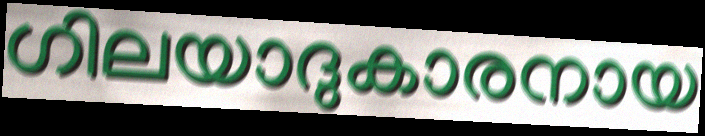
ഗിലയാദുകാരനായ